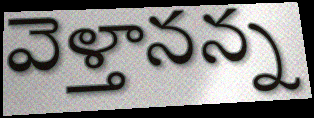
వెళ్తానన్న